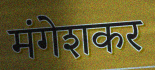
मंगेशकर